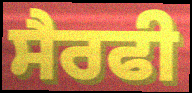
ਸੈਰਫੀ